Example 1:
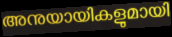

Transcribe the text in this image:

അനുയായികളുമായി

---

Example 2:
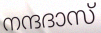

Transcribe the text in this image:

നന്ദദാസ്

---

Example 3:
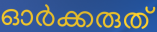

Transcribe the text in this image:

ഓർക്കരുത്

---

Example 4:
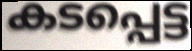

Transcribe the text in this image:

കടപ്പെട്ട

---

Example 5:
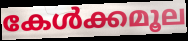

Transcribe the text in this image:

കേൾക്കമൂല